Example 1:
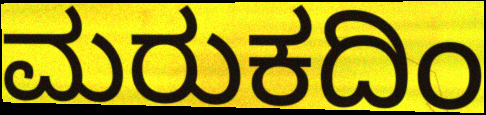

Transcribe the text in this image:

ಮರುಕದಿಂ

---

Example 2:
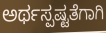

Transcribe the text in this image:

ಅರ್ಥಸ್ಪಷ್ಟತೆಗಾಗಿ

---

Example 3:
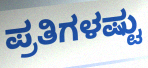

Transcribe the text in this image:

ಪ್ರತಿಗಳಷ್ಟು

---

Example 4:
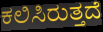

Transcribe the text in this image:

ಕಲಿಸಿರುತ್ತದೆ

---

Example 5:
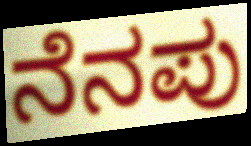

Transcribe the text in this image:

ನೆನಪು